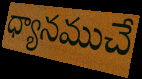
ధ్యానముచే